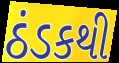
ઠંડકથી